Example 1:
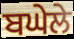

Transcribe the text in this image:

ਬਘੇਲੇ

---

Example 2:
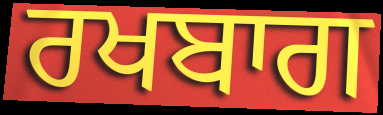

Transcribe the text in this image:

ਰਖਬਾਗ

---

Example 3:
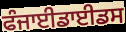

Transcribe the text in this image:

ਫੰਜਾਈਡਾਈਡਸ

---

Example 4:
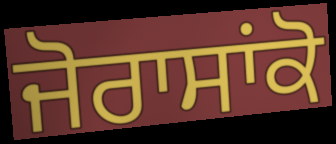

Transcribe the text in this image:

ਜੋਰਾਸਾਂਕੋ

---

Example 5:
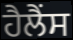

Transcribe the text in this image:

ਹੈਲੈਂਸ